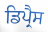
ਡਿਪ੍ਰੈਸ